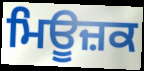
ਮਿਊਜ਼ਕ